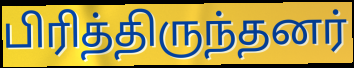
பிரித்திருந்தனர்